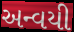
અન્વયી